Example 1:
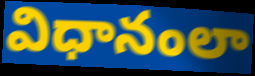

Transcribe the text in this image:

విధానంలా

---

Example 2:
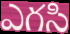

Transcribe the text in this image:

ఎగసి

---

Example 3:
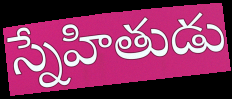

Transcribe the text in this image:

స్నేహితుడు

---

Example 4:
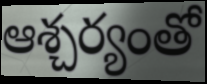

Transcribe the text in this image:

ఆశ్చర్యంతో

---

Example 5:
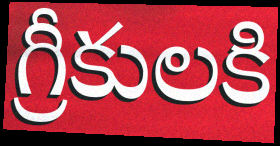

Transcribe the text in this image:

గ్రీకులకి